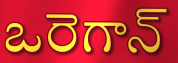
ఒరెగాన్